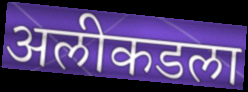
अलीकडला